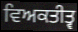
ਵਿਅਕਤੀਤ੍ਵ